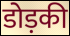
डोड़की